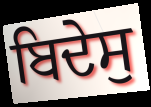
ਬਿਦੇਸੁ